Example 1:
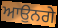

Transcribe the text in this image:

ਆਉਨਗੇ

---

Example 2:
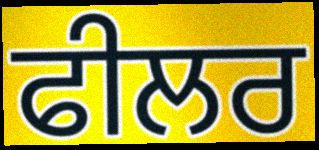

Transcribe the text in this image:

ਫੀਲਰ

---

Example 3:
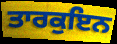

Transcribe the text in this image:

ਤਾਰਕੁਇਨ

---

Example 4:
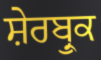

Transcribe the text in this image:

ਸ਼ੇਰਬ੍ਰੁਕ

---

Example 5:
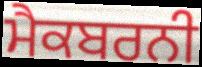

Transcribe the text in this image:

ਮੈਕਬਰਨੀ